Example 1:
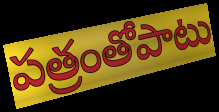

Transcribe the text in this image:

పత్రంతోపాటు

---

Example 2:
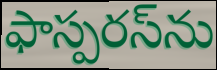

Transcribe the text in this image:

ఫాస్పరస్‌ను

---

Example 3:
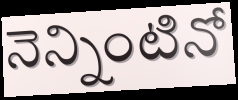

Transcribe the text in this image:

నెన్నింటినో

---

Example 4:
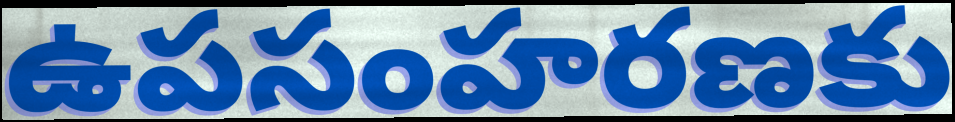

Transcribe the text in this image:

ఉపసంహరణకు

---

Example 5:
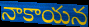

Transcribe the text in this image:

నాకాయన